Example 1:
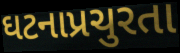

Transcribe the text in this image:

ઘટનાપ્રચુરતા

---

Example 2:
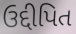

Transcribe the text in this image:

ઉદ્દીપિત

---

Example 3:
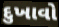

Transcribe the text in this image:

દુખાવો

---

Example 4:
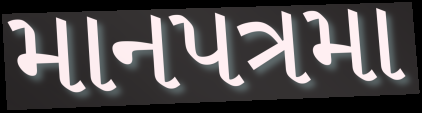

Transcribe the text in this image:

માનપત્રમા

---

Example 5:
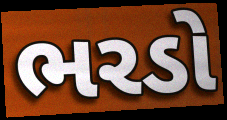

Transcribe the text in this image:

ભરડો